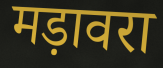
मड़ावरा